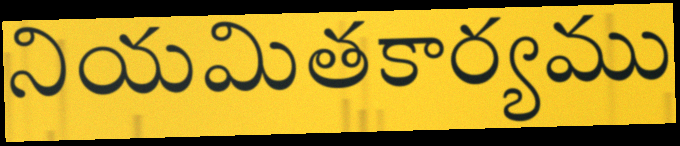
నియమితకార్యము